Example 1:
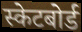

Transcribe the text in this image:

स्केटबोर्ड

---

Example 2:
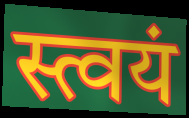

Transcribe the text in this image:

स्त्वयं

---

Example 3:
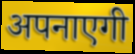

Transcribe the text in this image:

अपनाएगी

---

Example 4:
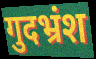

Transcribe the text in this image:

गुदभ्रंश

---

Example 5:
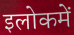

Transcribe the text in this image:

इलोकमें